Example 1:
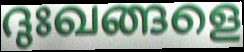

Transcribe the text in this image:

ദുഃഖങ്ങളെ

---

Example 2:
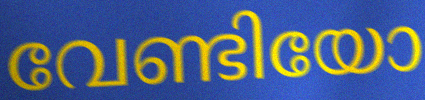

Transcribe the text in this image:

വേണ്ടിയോ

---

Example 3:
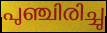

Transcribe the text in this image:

പുഞ്ചിരിച്ചു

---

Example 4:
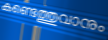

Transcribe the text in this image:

കണ്ടെത്തുവാനും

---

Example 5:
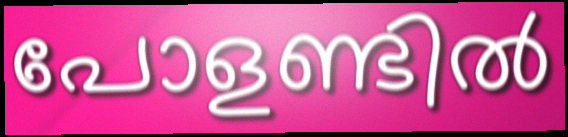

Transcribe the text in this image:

പോളണ്ടിൽ